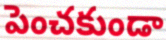
పెంచకుండా